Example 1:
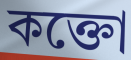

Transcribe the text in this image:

কক্তো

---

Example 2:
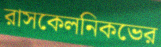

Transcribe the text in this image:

রাসকেলনিকভের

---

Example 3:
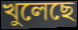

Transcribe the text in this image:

খুলেছে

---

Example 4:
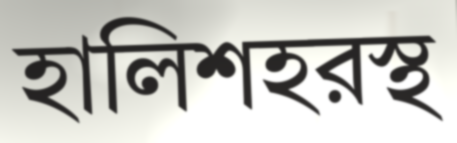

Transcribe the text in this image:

হালিশহরস্থ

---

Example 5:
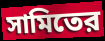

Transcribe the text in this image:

সামিতের